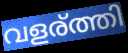
വളര്ത്തി